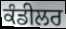
ਕੰਡੀਲਰ